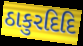
ઠાકુરદિદિ